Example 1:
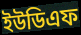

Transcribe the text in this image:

ইউডিএফ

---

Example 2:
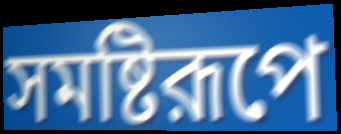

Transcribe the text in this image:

সমষ্টিরূপে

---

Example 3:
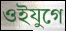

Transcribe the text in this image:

ওইযুগে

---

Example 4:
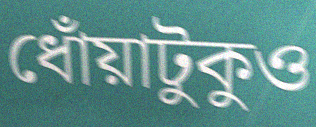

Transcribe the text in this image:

ধোঁয়াটুকুও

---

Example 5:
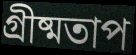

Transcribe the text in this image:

গ্রীষ্মতাপ